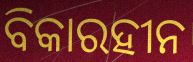
ବିକାରହୀନ